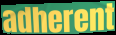
adherent